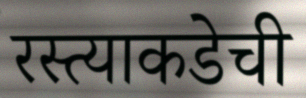
रस्त्याकडेची